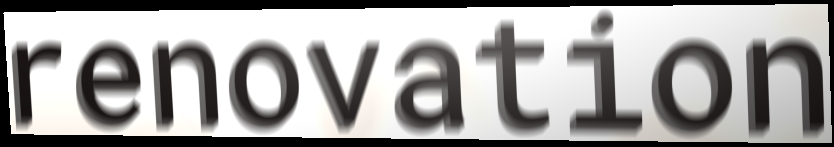
renovation